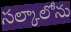
సల్కాలోను